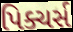
પિક્ચર્સ